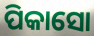
ପିକାସୋ